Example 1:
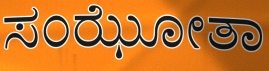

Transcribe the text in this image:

ಸಂಝೋತಾ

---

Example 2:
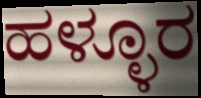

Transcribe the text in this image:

ಹಳ್ಳೂರ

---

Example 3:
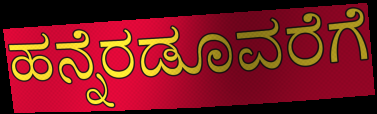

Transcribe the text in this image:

ಹನ್ನೆರಡೂವರೆಗೆ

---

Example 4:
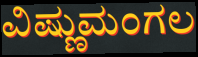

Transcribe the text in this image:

ವಿಷ್ಣುಮಂಗಲ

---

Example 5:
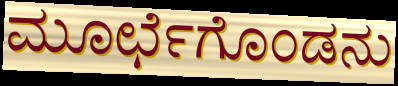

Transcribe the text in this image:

ಮೂರ್ಛೆಗೊಂಡನು